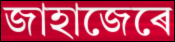
জাহাজেৰে